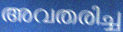
അവതരിച്ച